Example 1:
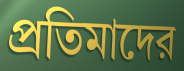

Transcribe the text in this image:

প্রতিমাদের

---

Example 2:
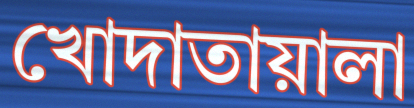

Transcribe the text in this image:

খোদাতায়ালা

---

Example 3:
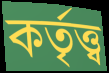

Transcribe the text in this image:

কর্তৃত্ত্ব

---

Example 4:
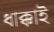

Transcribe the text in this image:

ধাক্কাই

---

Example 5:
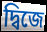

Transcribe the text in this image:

দ্বিজে